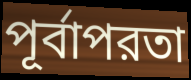
পূর্বাপরতা